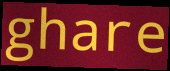
ghare